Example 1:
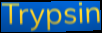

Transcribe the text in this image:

Trypsin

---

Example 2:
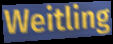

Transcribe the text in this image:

Weitling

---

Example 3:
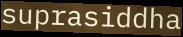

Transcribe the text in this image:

suprasiddha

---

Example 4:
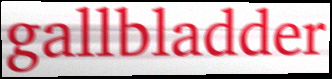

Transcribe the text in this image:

gallbladder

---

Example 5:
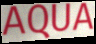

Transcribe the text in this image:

AQUA